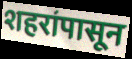
शहरांपासून